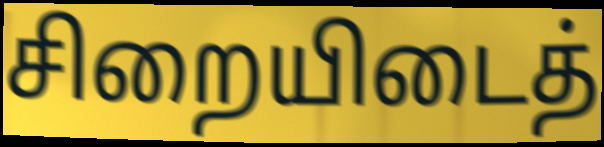
சிறையிடைத்